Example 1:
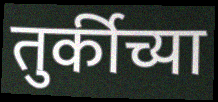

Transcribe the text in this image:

तुर्कीच्या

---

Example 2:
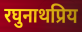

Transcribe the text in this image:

रघुनाथप्रिय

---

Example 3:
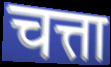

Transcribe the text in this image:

चत्ता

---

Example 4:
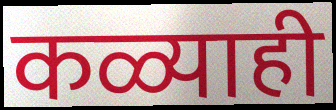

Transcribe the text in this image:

कळ्याही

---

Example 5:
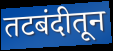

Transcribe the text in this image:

तटबंदीतून